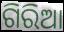
ଗିରିଆ